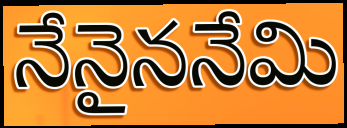
నేనైననేమి